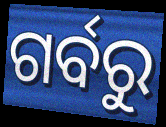
ଗର୍ବରୁ